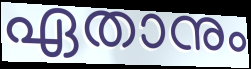
ഏതാനും